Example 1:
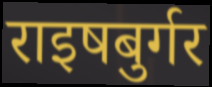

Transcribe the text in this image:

राइषबुर्गर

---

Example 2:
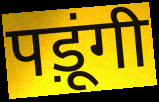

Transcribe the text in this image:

पड़ूंगी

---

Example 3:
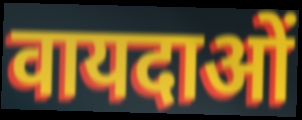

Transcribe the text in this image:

वायदाओं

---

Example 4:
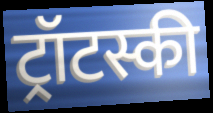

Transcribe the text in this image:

ट्रॉटस्की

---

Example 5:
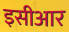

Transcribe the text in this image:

इसीआर